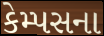
કેમ્પસના